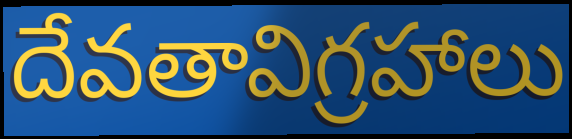
దేవతావిగ్రహాలు